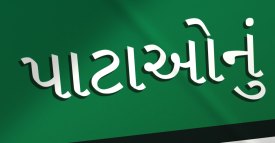
પાટાઓનું